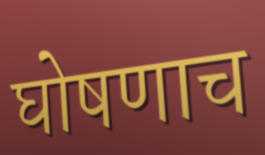
घोषणाच